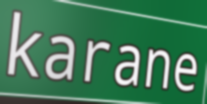
karane